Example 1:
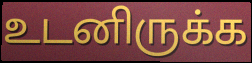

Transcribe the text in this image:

உடனிருக்க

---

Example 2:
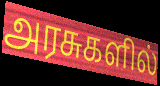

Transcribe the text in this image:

அரசுகளில்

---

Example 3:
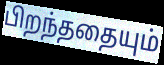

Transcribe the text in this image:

பிறந்ததையும்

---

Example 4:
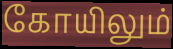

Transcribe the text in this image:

கோயிலும்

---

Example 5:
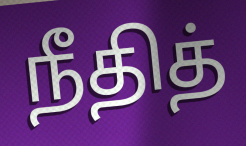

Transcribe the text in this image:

நீதித்